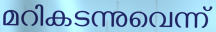
മറികടന്നുവെന്ന്